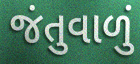
જંતુવાળું